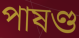
পাষণ্ড